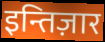
इन्तिज़ार